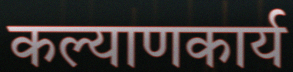
कल्याणकार्य